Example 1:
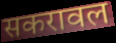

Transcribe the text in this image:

सकरावल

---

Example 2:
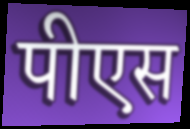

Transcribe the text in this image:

पीएस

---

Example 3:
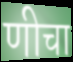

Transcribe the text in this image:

णीचा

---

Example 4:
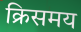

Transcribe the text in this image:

क्रिसमय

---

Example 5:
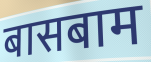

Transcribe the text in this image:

बासबाम